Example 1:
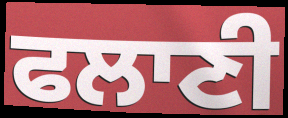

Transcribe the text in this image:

ਫਲਾਣੀ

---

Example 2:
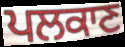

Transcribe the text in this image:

ਪਲਕਾਣ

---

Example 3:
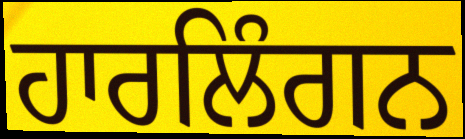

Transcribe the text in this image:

ਹਾਰਲਿੰਗਨ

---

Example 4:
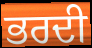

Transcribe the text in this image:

ਭਰਦੀ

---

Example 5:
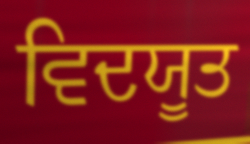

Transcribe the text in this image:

ਵਿਦਯੂਤ